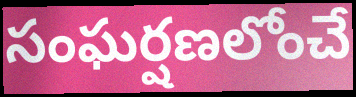
సంఘర్షణలోంచే